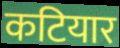
कटियार